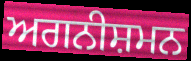
ਅਗਨੀਸ਼ਮਨ